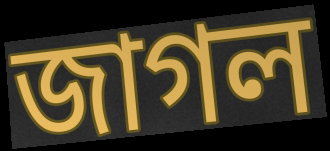
জাগল